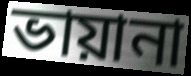
ভায়ানা